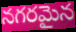
నగరమైన